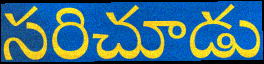
సరిచూడు